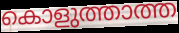
കൊളുത്താത്ത